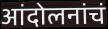
आंदोलनांचं